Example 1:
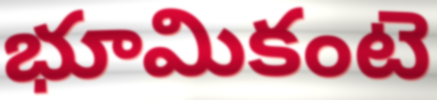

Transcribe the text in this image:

భూమికంటె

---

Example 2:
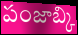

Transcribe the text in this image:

పంజాబ్కి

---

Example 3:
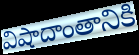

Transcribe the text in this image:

విషాదాంతానికి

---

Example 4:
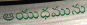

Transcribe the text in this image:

ఆయుధమును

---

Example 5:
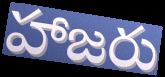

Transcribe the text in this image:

హాజరు